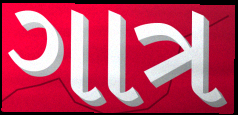
ગાત્ર